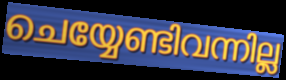
ചെയ്യേണ്ടിവന്നില്ല